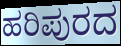
ಹರಿಪುರದ